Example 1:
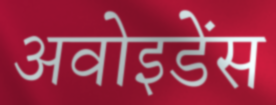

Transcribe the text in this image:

अवोइडेंस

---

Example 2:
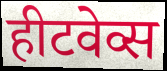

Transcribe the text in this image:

हीटवेव्स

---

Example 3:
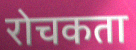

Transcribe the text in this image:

रोचकता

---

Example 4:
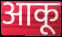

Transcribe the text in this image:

आकू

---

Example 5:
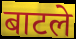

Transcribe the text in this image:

बाटले